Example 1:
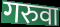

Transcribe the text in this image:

गरुवा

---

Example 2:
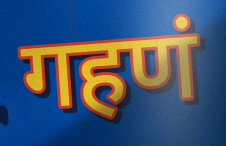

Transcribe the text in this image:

गहणं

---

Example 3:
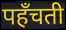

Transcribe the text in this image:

पहँचती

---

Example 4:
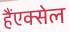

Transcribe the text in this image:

हैंएक्सेल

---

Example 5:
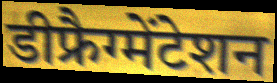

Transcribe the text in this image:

डीफ्रैग्मेंटेशन